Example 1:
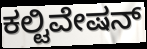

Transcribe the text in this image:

ಕಲ್ಟಿವೇಷನ್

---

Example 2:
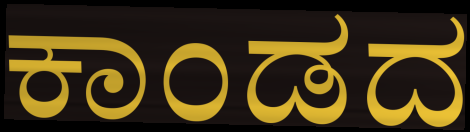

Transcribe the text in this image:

ಕಾಂಡದ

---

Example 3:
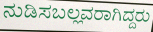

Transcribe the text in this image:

ನುಡಿಸಬಲ್ಲವರಾಗಿದ್ದರು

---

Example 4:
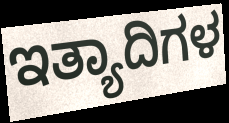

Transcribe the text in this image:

ಇತ್ಯಾದಿಗಳ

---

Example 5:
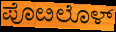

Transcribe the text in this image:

ಪೊೞಲೊಳ್